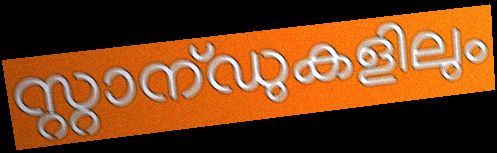
സ്റ്റാന്ഡുകളിലും